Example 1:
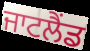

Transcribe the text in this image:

ਜਾਟਲੈਂਡ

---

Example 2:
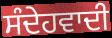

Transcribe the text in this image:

ਸੰਦੇਹਵਾਦੀ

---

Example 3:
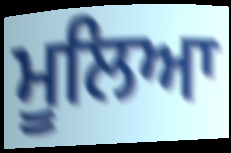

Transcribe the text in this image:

ਮੂਲਿਆ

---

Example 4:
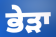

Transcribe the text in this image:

ਭੇੜਾ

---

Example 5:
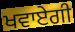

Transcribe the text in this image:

ਖਵਾਏਗੀ